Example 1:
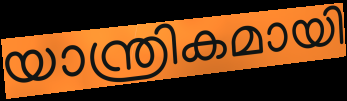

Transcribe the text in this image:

യാന്ത്രികമായി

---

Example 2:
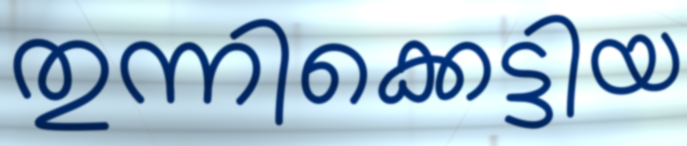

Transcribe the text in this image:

തുന്നിക്കെട്ടിയ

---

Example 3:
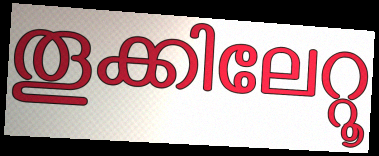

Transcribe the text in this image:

തൂക്കിലേറ്റൂ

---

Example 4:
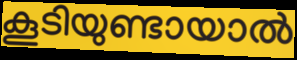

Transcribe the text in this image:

കൂടിയുണ്ടായാൽ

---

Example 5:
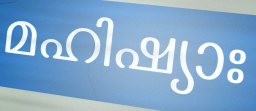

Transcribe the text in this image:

മഹിഷ്യാഃ